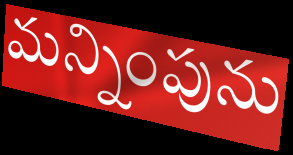
మన్నింపును